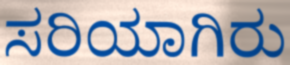
ಸರಿಯಾಗಿರು